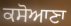
ਕਸੋਆਣਾ